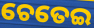
ଚେତେଇ